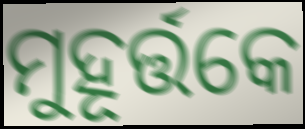
ମୁହୂର୍ତ୍ତକେ